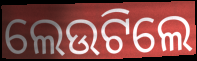
ଲେଉଟିଲେ